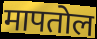
मापतोल